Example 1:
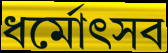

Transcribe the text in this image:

ধর্মোৎসব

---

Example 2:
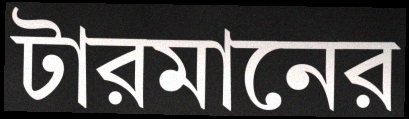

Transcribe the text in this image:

টারমানের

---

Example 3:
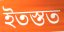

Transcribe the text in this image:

ইতস্তত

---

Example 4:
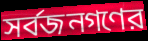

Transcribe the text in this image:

সর্বজনগণের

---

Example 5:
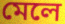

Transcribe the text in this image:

মেলে